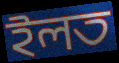
ইলত